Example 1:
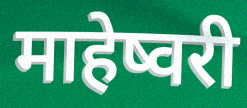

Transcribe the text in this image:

माहेष्वरी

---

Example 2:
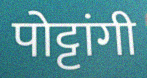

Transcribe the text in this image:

पोट्टांगी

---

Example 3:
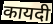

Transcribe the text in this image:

कायदी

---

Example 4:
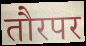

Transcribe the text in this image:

तौरपर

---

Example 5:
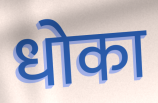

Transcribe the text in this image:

धोका